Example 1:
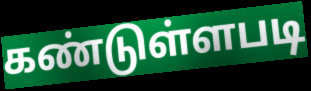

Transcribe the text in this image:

கண்டுள்ளபடி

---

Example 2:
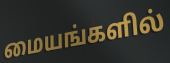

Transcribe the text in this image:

மையங்களில்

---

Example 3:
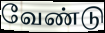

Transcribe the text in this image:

வேண்டு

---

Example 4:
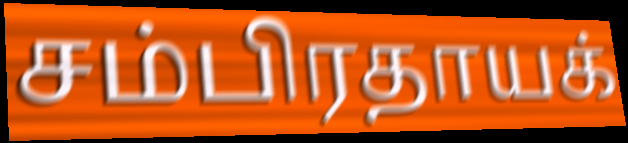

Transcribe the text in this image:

சம்பிரதாயக்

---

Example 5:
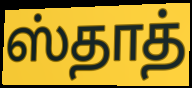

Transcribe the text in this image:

ஸ்தாத்